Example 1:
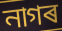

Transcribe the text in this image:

নাগৰ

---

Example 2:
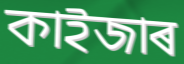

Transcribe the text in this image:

কাইজাৰ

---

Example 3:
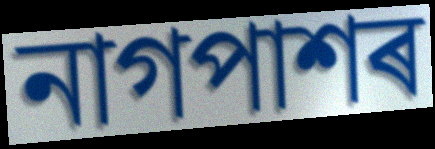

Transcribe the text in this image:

নাগপাশৰ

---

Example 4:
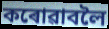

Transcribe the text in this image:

কৰোৱাবলৈ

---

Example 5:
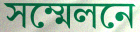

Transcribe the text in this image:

সম্মেলনে